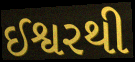
ઈશ્વરથી